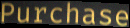
Purchase